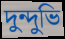
দুন্দুভি